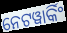
ନେଟୱାର୍କିଂ